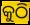
କୁଠି